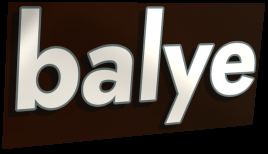
balye